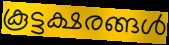
കൂട്ടക്ഷരങ്ങൾ